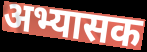
अभ्यासक